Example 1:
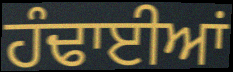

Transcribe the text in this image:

ਹੰਢਾਈਆਂ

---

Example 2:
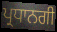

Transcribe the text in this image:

ਪ੍ਰਧਾਨਗੀ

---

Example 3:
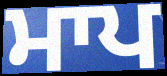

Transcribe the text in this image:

ਮਾਪ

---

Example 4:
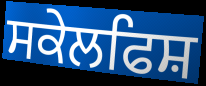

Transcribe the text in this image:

ਸਕੇਲਫਿਸ਼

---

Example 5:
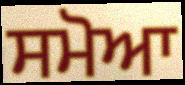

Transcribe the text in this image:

ਸਮੋਆ